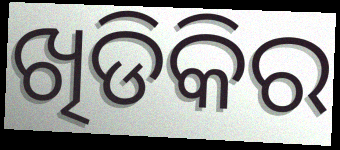
ଖିଡିକିର